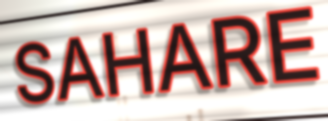
SAHARE